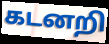
கடனறி